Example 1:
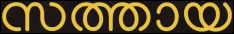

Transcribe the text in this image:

സത്തായ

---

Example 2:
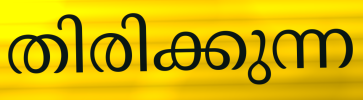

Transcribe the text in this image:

തിരിക്കുന്ന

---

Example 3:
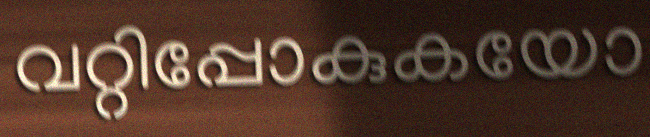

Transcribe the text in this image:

വറ്റിപ്പോകുകയോ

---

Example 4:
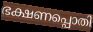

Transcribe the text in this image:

ഭക്ഷണപ്പൊതി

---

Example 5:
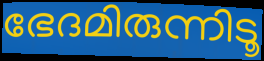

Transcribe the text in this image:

ഭേദമിരുന്നിടൂ